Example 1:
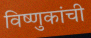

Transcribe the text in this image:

विष्णुकांची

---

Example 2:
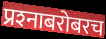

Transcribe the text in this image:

प्रश्‍नाबरोबरच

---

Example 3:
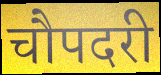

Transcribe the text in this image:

चौपदरी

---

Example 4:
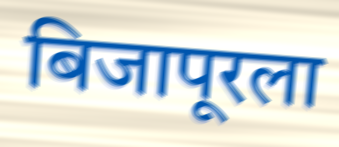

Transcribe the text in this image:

बिजापूरला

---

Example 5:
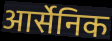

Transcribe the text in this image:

आर्सेनिक